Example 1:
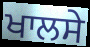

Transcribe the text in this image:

ਖਾਲਸੇ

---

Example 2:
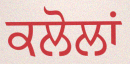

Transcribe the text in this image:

ਕਲੋਲਾਂ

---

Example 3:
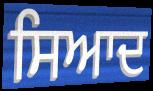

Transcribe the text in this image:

ਸਿਆਦ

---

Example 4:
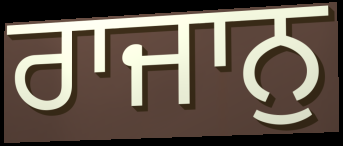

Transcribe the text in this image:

ਰਾਜਾਨੁ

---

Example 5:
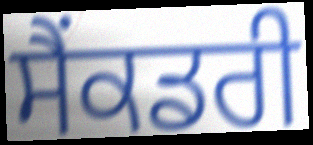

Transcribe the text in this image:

ਸੈਂਕਡਰੀ